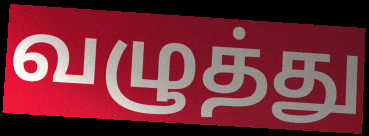
வழுத்து